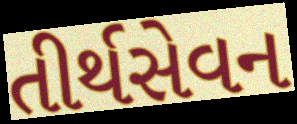
તીર્થસેવન